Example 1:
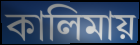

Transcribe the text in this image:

কালিমায়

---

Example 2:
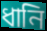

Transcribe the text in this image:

ধানি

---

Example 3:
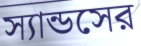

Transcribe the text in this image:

স্যান্ডসের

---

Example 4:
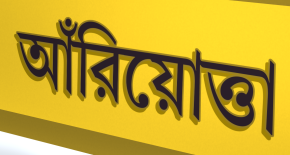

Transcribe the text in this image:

আঁরিয়োত্তা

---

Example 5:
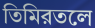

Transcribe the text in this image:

তিমিরতলে